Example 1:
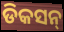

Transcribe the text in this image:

ଡିକସନ୍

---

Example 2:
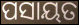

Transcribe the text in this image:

ପସାୟତ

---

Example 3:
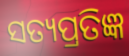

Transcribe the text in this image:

ସତ୍ୟପ୍ରତିଜ୍ଞ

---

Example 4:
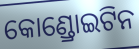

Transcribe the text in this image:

କୋଣ୍ଡ୍ରୋଇଟିନ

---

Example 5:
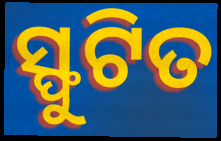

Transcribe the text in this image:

ସ୍ଫୁଟିତ